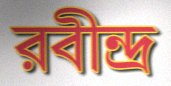
রবীন্দ্র